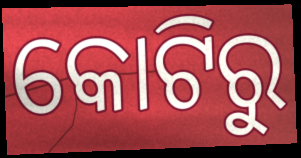
କୋଟିରୁ